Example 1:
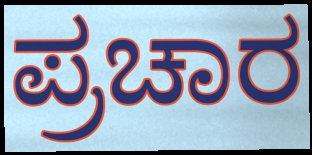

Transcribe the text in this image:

ಪ್ರಚಾರ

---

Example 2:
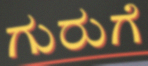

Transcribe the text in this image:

ಗುರುಗೆ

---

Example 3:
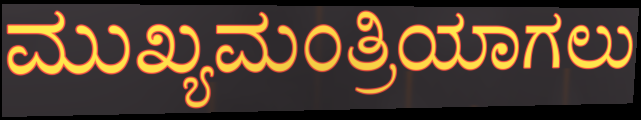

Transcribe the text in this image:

ಮುಖ್ಯಮಂತ್ರಿಯಾಗಲು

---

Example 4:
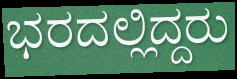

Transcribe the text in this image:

ಭರದಲ್ಲಿದ್ದರು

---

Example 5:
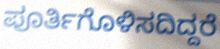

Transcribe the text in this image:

ಪೂರ್ತಿಗೊಳಿಸದಿದ್ದರೆ